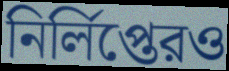
নির্লিপ্তেরও